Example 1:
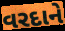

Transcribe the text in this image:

વરદાને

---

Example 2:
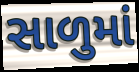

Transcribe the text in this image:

સાળુમાં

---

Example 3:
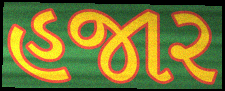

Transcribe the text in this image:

હજાર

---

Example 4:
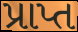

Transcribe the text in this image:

પ્રાપ્‍ત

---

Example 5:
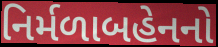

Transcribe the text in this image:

નિર્મળાબહેનનો